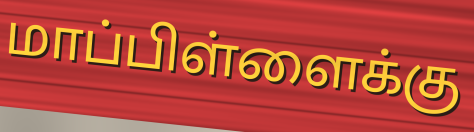
மாப்பிள்ளைக்கு